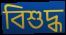
বিশুদ্ধ